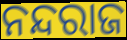
ନନ୍ଦରାଜ